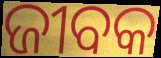
ଜୀବକ